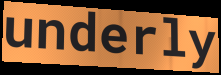
underly